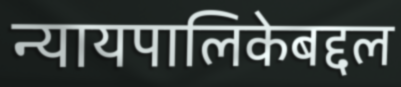
न्यायपालिकेबद्दल